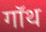
गॉथ